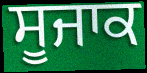
ਸੂਜਾਕ